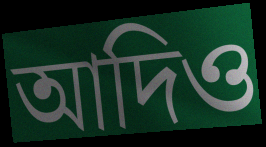
আদিও